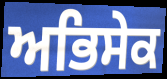
ਅਭਿਸੇਕ